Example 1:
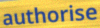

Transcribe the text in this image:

authorise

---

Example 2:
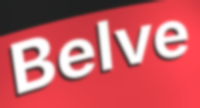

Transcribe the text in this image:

Belve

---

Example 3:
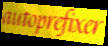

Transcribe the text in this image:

autoprefixer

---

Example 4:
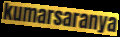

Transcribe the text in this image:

kumarsaranya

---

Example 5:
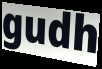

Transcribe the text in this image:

gudh